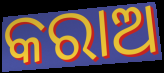
କରାଅ